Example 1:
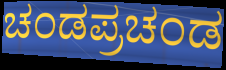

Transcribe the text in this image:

ಚಂಡಪ್ರಚಂಡ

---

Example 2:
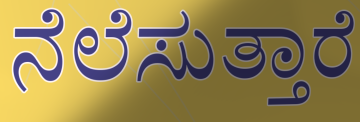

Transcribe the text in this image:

ನೆಲೆಸುತ್ತಾರೆ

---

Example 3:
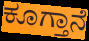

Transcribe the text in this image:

ಕೂಗ್ತಾನೆ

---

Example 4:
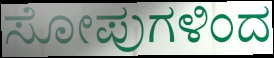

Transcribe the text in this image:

ಸೋಪುಗಳಿಂದ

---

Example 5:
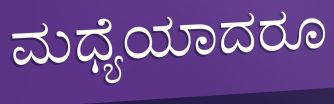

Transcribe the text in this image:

ಮಧ್ಯೆಯಾದರೂ